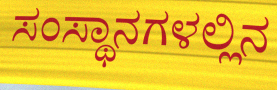
ಸಂಸ್ಥಾನಗಳಲ್ಲಿನ